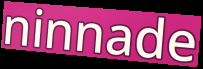
ninnade